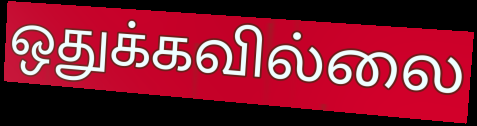
ஒதுக்கவில்லை